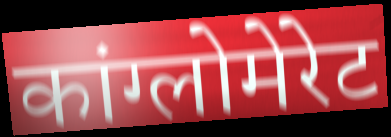
कांग्लोमेरेट